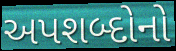
અપશબ્દોનો